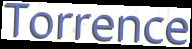
Torrence